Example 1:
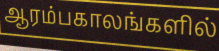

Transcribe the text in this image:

ஆரம்பகாலங்களில்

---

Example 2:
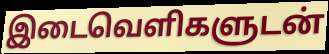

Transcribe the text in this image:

இடைவெளிகளுடன்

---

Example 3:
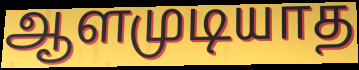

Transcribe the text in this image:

ஆளமுடியாத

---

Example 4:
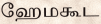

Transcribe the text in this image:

ஹேமகூட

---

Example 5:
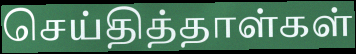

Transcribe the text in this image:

செய்தித்தாள்கள்